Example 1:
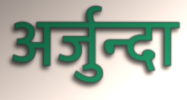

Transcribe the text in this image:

अर्जुन्दा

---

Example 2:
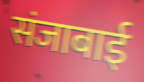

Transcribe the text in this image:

संजाबाई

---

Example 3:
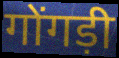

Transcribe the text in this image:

गोंगड़ी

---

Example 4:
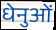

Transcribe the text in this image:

धेनुओं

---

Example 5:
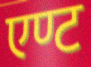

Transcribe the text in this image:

एण्ट